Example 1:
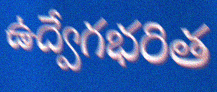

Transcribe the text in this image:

ఉద్వేగభరిత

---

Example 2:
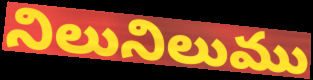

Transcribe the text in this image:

నిలునిలుము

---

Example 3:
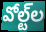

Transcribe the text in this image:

వోల్ట్‌ల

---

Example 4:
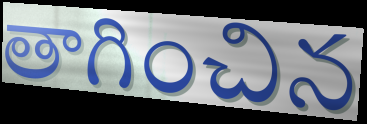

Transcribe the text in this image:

తాగించిన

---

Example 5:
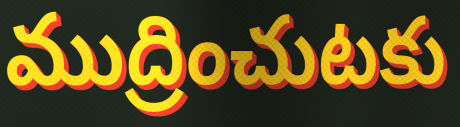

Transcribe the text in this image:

ముద్రించుటకు